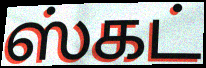
ஸ்கட்